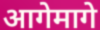
आगेमागे